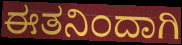
ಈತನಿಂದಾಗಿ